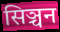
सिञ्चन